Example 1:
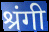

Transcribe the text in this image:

श्रंगी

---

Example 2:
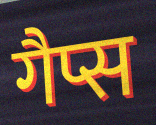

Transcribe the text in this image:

गैप्स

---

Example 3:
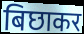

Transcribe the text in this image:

बिछाकर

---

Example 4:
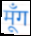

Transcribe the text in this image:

मूँग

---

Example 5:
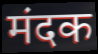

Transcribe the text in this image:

मंदक